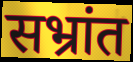
सभ्रांत